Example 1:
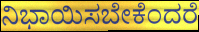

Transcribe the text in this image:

ನಿಭಾಯಿಸಬೇಕೆಂದರೆ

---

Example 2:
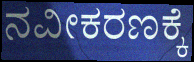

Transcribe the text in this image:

ನವೀಕರಣಕ್ಕೆ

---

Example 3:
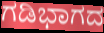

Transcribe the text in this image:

ಗಡಿಭಾಗದ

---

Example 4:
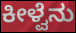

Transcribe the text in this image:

ಕೀಳ್ವೆನು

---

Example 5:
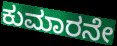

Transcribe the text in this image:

ಕುಮಾರನೇ